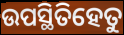
ଉପସ୍ଥିତିହେତୁ